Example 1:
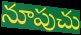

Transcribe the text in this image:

నూపుచు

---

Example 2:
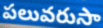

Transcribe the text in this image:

పలువరుసా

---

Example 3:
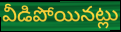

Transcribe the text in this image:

వీడిపోయినట్లు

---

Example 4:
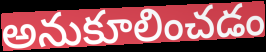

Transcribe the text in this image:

అనుకూలించడం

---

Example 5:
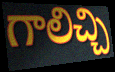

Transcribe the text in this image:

గాలిచ్చి